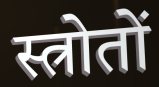
स्त्रोतों